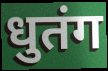
धुतंग